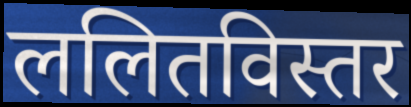
ललितविस्तर